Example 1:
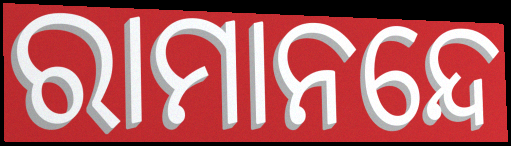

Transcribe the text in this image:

ରାମାନନ୍ଦେ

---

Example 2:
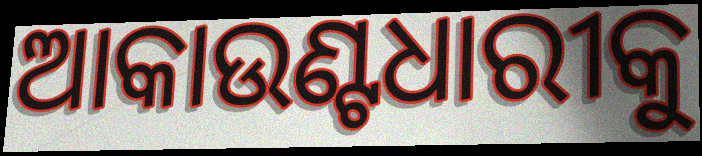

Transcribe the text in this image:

ଆକାଉଣ୍ଟଧାରୀକୁ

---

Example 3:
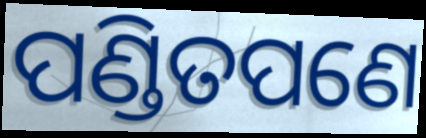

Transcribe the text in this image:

ପଣ୍ଡିତପଣେ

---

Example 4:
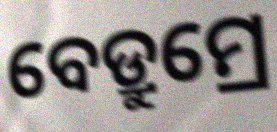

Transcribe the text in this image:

ବେଡ୍ରୁମ୍ରେ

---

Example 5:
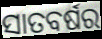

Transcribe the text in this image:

ସାତବର୍ଷର